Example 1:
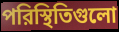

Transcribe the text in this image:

পরিস্থিতিগুলো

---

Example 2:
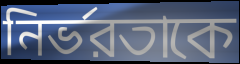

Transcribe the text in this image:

নির্ভরতাকে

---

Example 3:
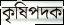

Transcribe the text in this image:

কৃষিপদক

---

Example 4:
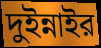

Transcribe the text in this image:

দুইন্নাইর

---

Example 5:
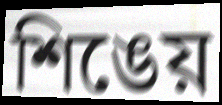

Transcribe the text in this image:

শিঙেয়